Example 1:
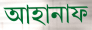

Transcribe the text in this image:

আহানাফ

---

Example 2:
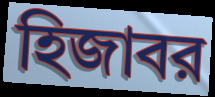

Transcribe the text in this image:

হিজাবর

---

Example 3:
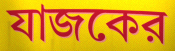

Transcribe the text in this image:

যাজকের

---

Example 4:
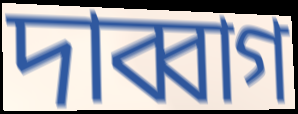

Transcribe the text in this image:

দাব্বাগ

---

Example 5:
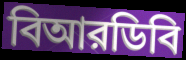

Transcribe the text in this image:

বিআরডিবি